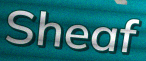
Sheaf